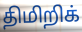
திமிறிக்